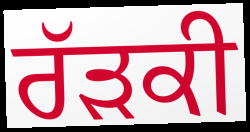
ਰੱੜਕੀ